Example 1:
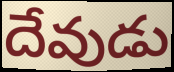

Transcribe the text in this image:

దేవుడు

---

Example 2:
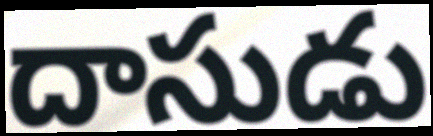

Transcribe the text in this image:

దాసుడు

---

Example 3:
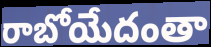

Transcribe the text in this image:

రాబోయేదంతా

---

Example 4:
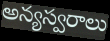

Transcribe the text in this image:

అన్యస్వరాలు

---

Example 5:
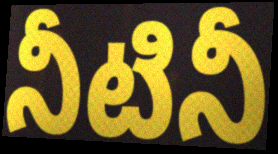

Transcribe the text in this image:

నీటినీ